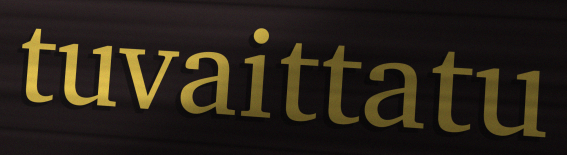
tuvaittatu